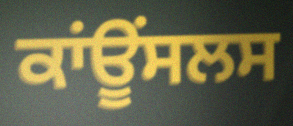
ਕਾਂਊਂਸਲਸ